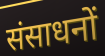
संसाधनों